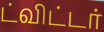
ட்விட்டர்